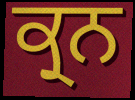
ਕ੍ਰਨ